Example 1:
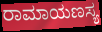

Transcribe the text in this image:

ರಾಮಾಯಣಸ್ಯ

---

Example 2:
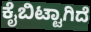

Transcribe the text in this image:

ಕೈಬಿಟ್ಟಾಗಿದೆ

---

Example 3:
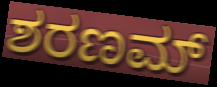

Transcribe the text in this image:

ಶರಣಮ್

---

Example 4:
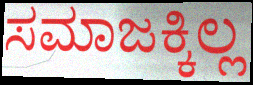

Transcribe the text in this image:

ಸಮಾಜಕ್ಕಿಲ್ಲ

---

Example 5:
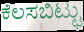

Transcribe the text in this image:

ಕೆಲಸಬಿಟ್ಟು